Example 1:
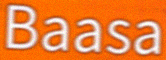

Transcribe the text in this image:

Baasa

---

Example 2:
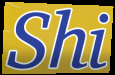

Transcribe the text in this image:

Shi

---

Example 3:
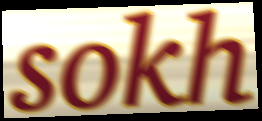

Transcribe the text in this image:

sokh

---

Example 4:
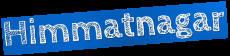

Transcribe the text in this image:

Himmatnagar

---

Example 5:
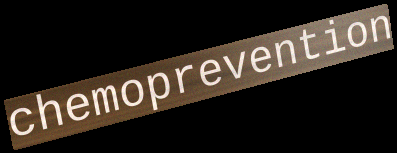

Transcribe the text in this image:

chemoprevention